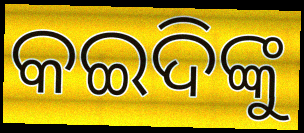
କଇଦିଙ୍କୁ